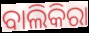
ବାଲିକିରା